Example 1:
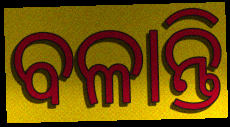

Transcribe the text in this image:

ବଳାନ୍ତି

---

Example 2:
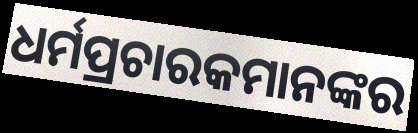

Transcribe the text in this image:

ଧର୍ମପ୍ରଚାରକମାନଙ୍କର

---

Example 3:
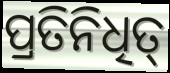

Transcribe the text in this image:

ପ୍ରତିନିଧିତ୍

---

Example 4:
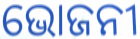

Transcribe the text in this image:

ଭୋଜନୀ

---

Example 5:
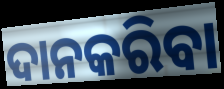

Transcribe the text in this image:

ଦାନକରିବା